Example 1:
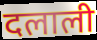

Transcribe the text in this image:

दलाली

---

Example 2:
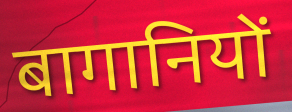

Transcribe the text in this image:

बागानियों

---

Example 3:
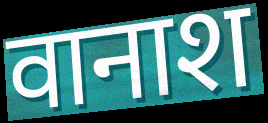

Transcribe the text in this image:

वानाश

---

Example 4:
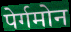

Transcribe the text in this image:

पेर्गमोन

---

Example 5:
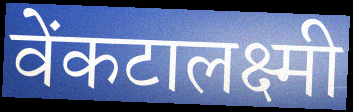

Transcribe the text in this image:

वेंकटालक्ष्मी